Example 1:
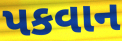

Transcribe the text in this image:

પકવાન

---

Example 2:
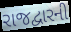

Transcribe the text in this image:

રાજદ્વારની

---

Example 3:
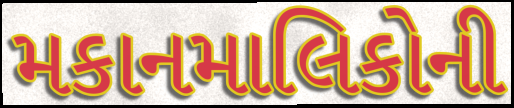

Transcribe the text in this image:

મકાનમાલિકોની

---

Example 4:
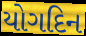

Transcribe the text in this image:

યોગદિન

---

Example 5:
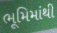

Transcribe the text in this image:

ભૂમિમાંથી